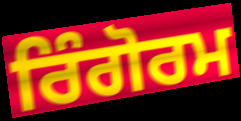
ਰਿੰਗੋਰਮ